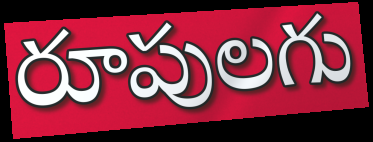
రూపులగు